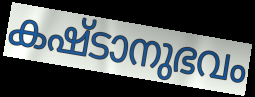
കഷ്ടാനുഭവം